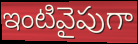
ఇంటివైపుగా